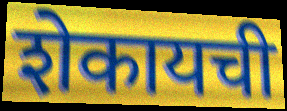
शेकायची